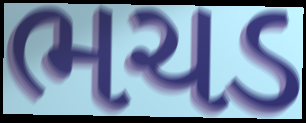
ભચડ